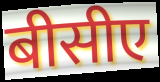
बीसीए